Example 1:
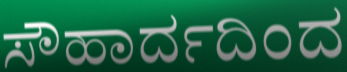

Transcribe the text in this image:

ಸೌಹಾರ್ದದಿಂದ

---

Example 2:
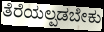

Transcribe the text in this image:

ತೆರೆಯಲ್ಪಡಬೇಕು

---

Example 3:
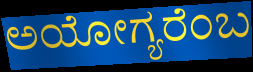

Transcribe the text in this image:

ಅಯೋಗ್ಯರೆಂಬ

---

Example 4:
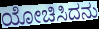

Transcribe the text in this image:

ಯೋಚಿಸಿದನು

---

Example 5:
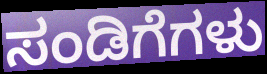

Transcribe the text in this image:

ಸಂಡಿಗೆಗಳು